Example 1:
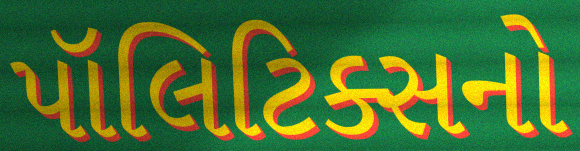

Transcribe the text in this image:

પૉલિટિક્સનો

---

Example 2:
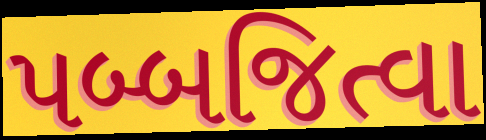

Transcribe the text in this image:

પબ્બજિત્વા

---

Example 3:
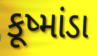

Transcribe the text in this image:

કૂષ્માંડા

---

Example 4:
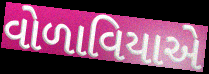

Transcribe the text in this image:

વોળાવિયાએ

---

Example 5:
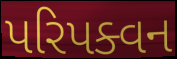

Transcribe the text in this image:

પરિપક્વન